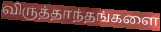
விருத்தாந்தங்களை